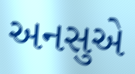
અનસુએ